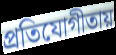
প্রতিযোগীতায়